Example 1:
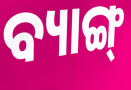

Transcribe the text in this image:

ବ୍ୟାଙ୍ଗ୍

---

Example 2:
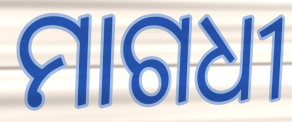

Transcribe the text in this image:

ମାଗଧୀ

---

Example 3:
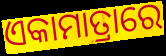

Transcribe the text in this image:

ଏକାମାତ୍ରାରେ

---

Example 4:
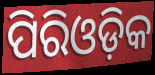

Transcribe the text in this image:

ପିରିଓଡ଼ିକ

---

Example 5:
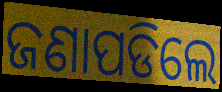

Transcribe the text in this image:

ଜଣାପଡିଲେ